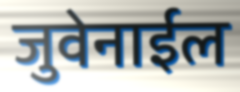
जुवेनाईल